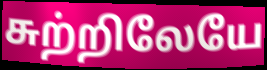
சுற்றிலேயே